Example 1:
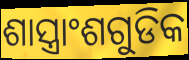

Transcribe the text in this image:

ଶାସ୍ତ୍ରାଂଶଗୁଡିକ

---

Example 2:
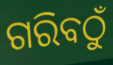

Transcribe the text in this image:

ଗରିବଠୁଁ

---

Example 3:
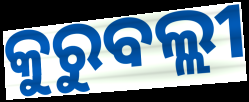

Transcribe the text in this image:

କୁରୁବଲ୍ଲୀ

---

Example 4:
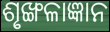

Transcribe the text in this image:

ଶୃଙ୍ଖଳାଜ୍ଞାନ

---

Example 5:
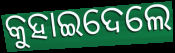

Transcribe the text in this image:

କୁହାଇଦେଲେ